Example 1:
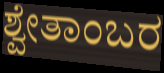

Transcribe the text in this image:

ಶ್ವೇತಾಂಬರ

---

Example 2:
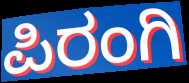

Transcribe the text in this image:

ಪಿರಂಗಿ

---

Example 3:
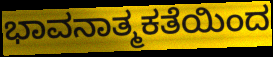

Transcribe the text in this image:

ಭಾವನಾತ್ಮಕತೆಯಿಂದ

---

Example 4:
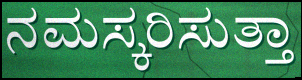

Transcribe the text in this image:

ನಮಸ್ಕರಿಸುತ್ತಾ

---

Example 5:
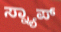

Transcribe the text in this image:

ಸ್ನ್ಯಾಪ್